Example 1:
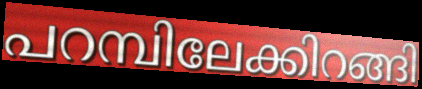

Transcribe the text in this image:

പറമ്പിലേക്കിറങ്ങി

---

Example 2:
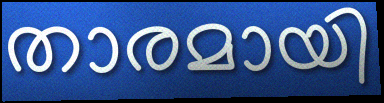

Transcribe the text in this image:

താരമായി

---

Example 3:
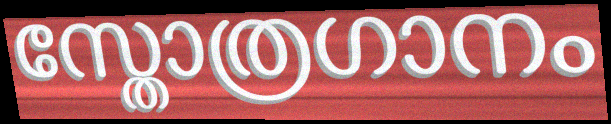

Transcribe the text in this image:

സ്തോത്രഗാനം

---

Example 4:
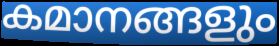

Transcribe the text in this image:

കമാനങ്ങളും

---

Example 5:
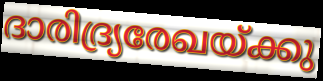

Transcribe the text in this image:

ദാരിദ്ര്യരേഖയ്ക്കു